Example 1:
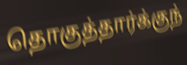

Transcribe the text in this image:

தொகுத்தார்க்குந்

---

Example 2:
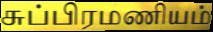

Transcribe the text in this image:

சுப்பிரமணியம்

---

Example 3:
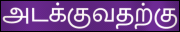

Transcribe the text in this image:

அடக்குவதற்கு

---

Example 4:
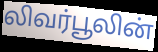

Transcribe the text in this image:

லிவர்பூலின்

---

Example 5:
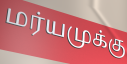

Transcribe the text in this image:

மர்யமுக்கு